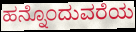
ಹನ್ನೊಂದುವರೆಯ